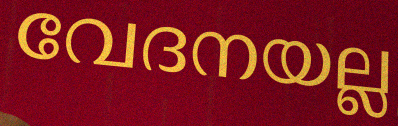
വേദനയല്ല